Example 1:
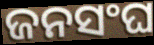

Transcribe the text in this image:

ଜନସଂଘ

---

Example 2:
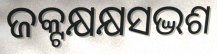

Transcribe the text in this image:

ଜକ୍ଟକ୍ଷକ୍ଷସଦ୍ଭଶ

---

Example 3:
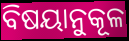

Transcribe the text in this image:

ବିଷୟାନୁକୂଳ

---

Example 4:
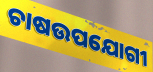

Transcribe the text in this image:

ଚାଷଉପଯୋଗୀ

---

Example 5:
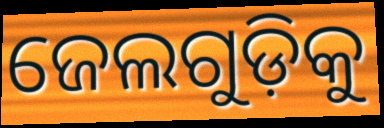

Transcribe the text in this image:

ଜେଲଗୁଡ଼ିକୁ